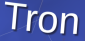
Tron